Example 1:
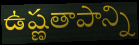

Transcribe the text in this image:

ఉష్ణతాపాన్ని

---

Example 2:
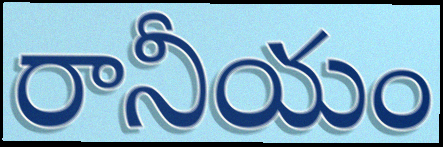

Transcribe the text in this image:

రానీయం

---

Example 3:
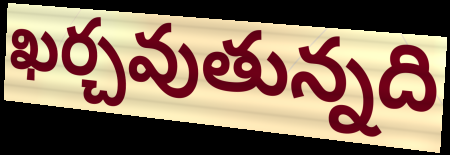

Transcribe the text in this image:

ఖర్చవుతున్నది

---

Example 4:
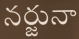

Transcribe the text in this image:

నర్జునా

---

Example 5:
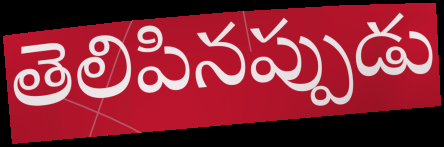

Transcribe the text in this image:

తెలిపినప్పుడు